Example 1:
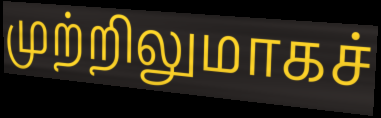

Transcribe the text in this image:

முற்றிலுமாகச்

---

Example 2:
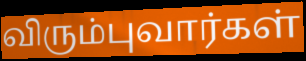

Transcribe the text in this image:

விரும்புவார்கள்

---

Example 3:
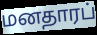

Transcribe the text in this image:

மனதாரப்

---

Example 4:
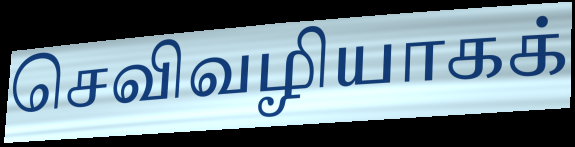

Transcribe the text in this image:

செவிவழியாகக்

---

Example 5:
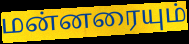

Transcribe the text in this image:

மன்னரையும்